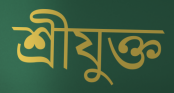
শ্রীযুক্ত